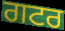
ਗਟਰ